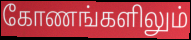
கோணங்களிலும்